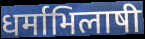
धर्माभिलाषी